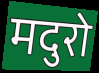
मदुरो